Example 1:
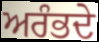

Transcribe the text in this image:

ਅਰੰਭਦੇ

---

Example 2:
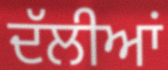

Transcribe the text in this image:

ਦੱਲੀਆਂ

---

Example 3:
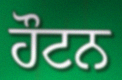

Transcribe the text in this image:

ਹੌਟਨ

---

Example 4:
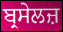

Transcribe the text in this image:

ਬ੍ਰਸੇਲਜ਼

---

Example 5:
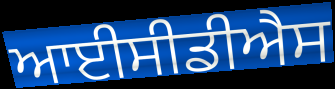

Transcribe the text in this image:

ਆਈਸੀਡੀਐਸ